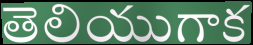
తెలియుగాక